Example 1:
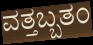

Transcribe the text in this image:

ವತ್ತಬ್ಬತಂ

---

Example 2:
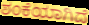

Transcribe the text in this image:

ಶಂಕೆಯಾಗಿದೆ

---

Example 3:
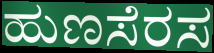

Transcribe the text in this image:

ಹುಣಸೆರಸ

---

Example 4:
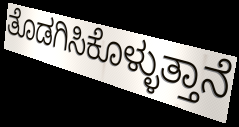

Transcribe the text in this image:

ತೊಡಗಿಸಿಕೊಳ್ಳುತ್ತಾನೆ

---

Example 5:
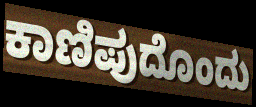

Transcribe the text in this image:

ಕಾಣಿಪುದೊಂದು